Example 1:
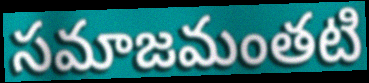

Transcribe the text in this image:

సమాజమంతటి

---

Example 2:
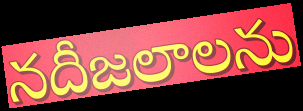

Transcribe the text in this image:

నదీజలాలను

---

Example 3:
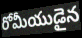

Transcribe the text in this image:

రోమీయుడైన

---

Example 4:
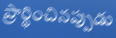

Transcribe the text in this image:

ప్రార్థించినప్పుడు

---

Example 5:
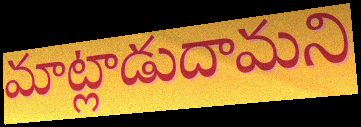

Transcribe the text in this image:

మాట్లాడుదామని